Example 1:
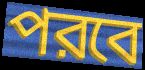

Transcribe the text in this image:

পরবে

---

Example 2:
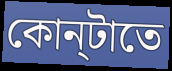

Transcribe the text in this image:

কোন্‌টাতে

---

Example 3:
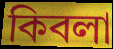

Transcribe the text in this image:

কিবলা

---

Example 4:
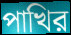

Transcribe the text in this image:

পাখির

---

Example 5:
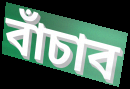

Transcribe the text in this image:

বাঁচাব